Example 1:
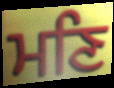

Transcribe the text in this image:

ਮਣਿ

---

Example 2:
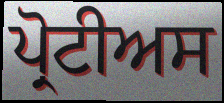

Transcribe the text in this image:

ਪ੍ਰੋਟੀਅਸ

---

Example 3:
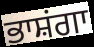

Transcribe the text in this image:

ਭਾਸ਼ਂਗਾ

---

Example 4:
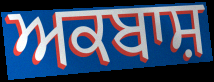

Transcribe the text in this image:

ਅਕਬਾਸ਼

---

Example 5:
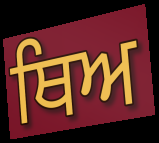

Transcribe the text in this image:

ਥਿਅ